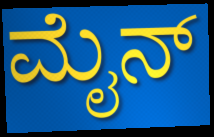
ಮೈನ್